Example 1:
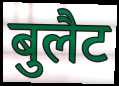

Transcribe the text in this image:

बुलैट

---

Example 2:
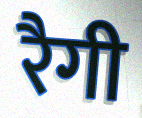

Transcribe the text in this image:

रैगी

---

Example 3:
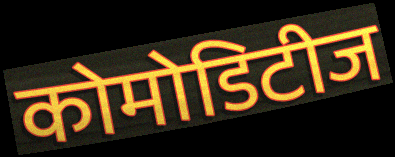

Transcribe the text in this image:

कोमोडिटीज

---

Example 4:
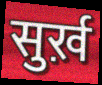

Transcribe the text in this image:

सुर्ख़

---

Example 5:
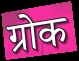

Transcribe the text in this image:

ग्रोक